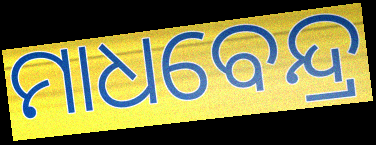
ମାଧବେନ୍ଦ୍ର